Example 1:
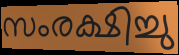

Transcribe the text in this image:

സംരക്ഷിച്ചു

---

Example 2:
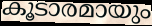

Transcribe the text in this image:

കൂടാരമായും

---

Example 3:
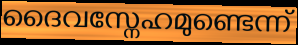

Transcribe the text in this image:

ദൈവസ്നേഹമുണ്ടെന്ന്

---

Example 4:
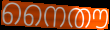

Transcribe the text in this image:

നൈതൗ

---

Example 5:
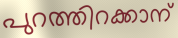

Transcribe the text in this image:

പുറത്തിറക്കാന്